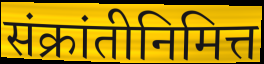
संक्रांतीनिमित्त